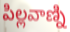
పిల్లవాణ్ని